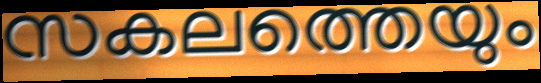
സകലത്തെയും